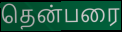
தென்பரை